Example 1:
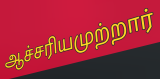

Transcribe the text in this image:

ஆச்சரியமுற்றார்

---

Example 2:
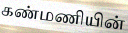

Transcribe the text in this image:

கண்மணியின்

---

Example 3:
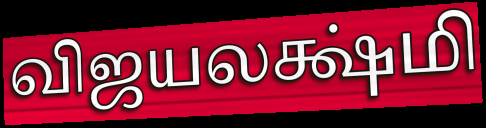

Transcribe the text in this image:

விஜயலக்ஷ்மி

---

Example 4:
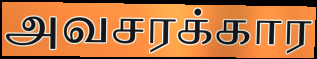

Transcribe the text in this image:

அவசரக்கார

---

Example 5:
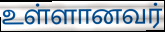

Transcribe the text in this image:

உள்ளானவர்